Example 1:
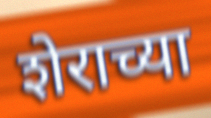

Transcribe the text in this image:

शेराच्या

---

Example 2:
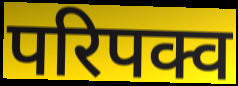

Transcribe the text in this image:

परिपक्व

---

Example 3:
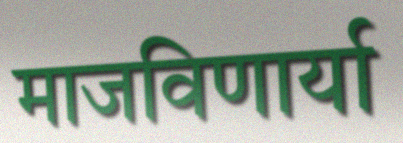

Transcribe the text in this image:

माजविणार्या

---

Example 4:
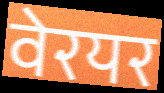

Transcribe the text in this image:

वेरयर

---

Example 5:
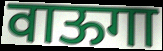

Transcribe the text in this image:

वाऊगा